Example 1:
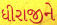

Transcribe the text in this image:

ધીરાજીને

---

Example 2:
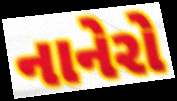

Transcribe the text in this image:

નાનેરો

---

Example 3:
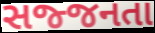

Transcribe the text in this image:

સજ્જનતા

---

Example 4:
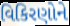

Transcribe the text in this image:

વિકિરણોને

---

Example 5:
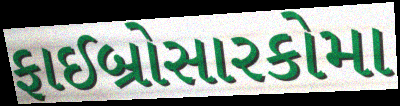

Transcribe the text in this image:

ફાઈબ્રોસારકોમા